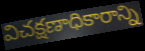
విచక్షణాధికారాన్ని